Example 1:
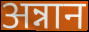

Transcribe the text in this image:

अन्नान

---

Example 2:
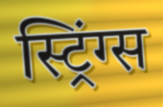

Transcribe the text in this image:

स्ट्रिंग्स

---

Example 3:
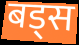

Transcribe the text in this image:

बड्स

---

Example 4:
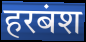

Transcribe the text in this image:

हरबंश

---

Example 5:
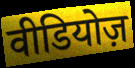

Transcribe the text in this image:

वीडियोज़